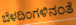
ಬೆಳದಿಂಗಳಿನಂತೆ